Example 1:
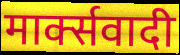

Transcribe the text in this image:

मार्क्सवादी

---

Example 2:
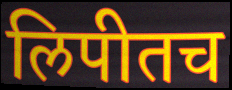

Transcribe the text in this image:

लिपीतच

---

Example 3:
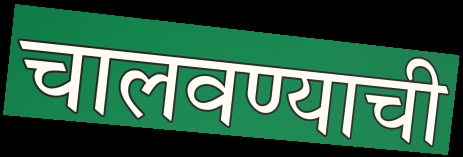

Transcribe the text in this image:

चालवण्याची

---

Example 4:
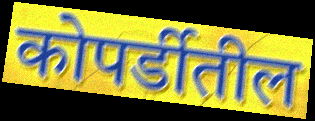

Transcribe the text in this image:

कोपर्डीतील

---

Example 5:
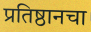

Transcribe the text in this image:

प्रतिष्ठानचा